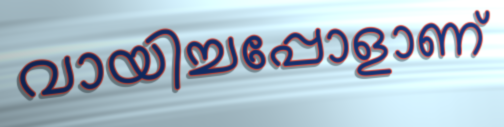
വായിച്ചപ്പോളാണ്